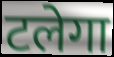
टलेगा